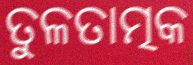
ତୁଳତାତ୍ମକ